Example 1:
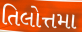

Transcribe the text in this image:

તિલોત્તમા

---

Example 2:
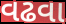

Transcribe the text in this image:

વઢવા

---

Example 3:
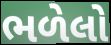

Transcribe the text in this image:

ભળેલો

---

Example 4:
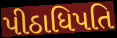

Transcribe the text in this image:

પીઠાધિપતિ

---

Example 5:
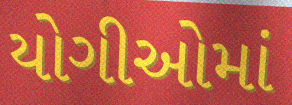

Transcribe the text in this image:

યોગીઓમાં